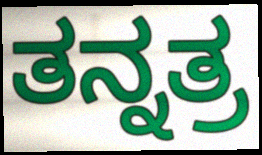
ತನ್ನತ್ರ